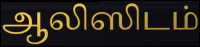
ஆலிஸிடம்